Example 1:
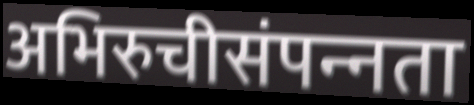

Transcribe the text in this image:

अभिरुचीसंपन्नता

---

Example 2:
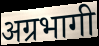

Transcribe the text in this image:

अग्रभागी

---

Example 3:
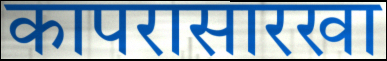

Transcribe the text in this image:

कापरासारखा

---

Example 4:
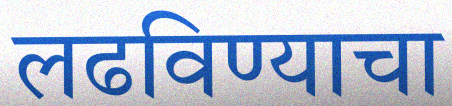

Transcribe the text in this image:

लढविण्याचा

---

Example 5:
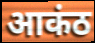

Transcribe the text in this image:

आकंठ